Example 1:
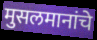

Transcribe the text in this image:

मुसलमानांचे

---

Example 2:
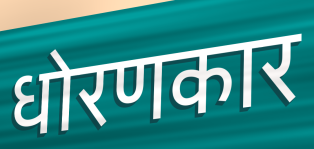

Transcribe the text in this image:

धोरणकार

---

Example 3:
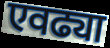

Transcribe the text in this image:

एवढ्या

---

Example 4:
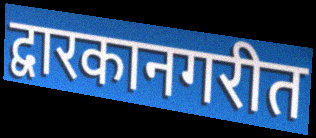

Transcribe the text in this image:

द्वारकानगरीत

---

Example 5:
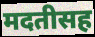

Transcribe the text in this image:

मदतीसह